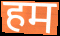
हम